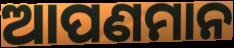
ଆପଣମାନ